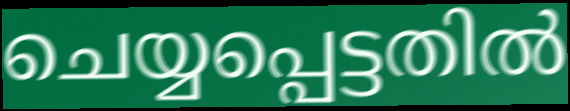
ചെയ്യപ്പെട്ടതിൽ